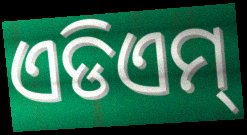
ଏଡିଏମ୍